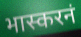
भास्करनं